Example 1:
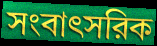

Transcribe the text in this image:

সংবাৎসরিক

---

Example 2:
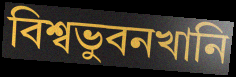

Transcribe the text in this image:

বিশ্বভুবনখানি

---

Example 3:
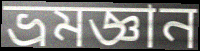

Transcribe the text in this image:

ভ্রমজ্ঞান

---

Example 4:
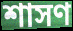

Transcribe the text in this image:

শাসণ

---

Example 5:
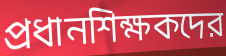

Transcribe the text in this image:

প্রধানশিক্ষকদের